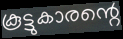
കൂട്ടുകാരന്റെ